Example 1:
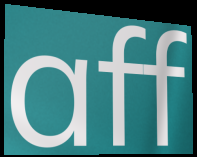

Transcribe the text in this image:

aff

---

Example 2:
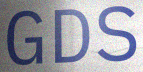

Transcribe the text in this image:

GDS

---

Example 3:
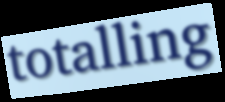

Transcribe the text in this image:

totalling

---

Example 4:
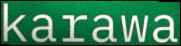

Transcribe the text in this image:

karawa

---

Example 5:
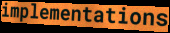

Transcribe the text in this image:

implementations